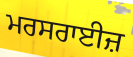
ਮਰਸਰਾਈਜ਼